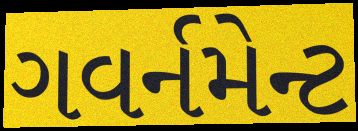
ગવર્નમેન્ટ